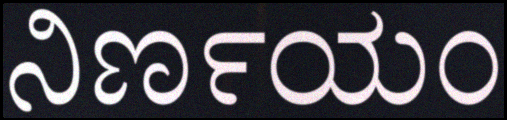
ನಿರ್ಣಯಂ